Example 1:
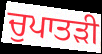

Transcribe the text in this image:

ਚੁਪਾਤੜੀ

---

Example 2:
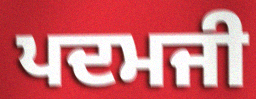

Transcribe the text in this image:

ਪਦਮਜੀ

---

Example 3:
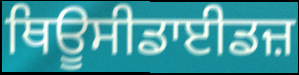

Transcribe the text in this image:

ਥਿਊਸੀਡਾਈਡਜ਼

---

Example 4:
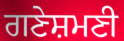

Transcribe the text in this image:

ਗਣੇਸ਼ਮਣੀ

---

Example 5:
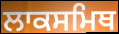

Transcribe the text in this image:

ਲਾਕਸਮਿਥ